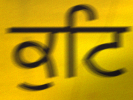
ਕੁਟਿ